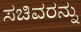
ಸಚಿವರನ್ನು